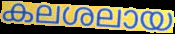
കലശലായ